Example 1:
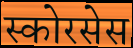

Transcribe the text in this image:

स्कोरसेस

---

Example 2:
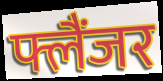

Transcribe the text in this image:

फ्लैंजर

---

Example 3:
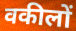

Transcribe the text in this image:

वकीलों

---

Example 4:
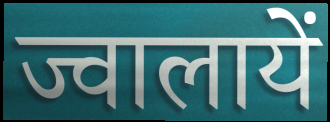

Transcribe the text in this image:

ज्वालायें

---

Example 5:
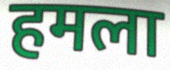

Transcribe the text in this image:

हमला